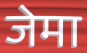
जेमा